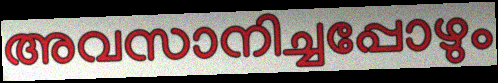
അവസാനിച്ചപ്പോഴും